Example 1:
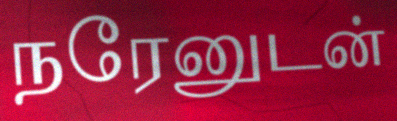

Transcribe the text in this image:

நரேனுடன்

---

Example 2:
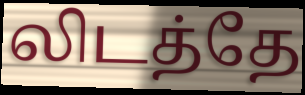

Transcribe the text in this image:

லிடத்தே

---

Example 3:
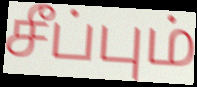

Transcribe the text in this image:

சீப்பும்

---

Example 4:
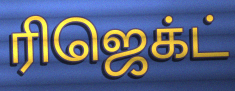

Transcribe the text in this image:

ரிஜெக்ட்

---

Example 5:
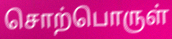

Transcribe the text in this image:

சொற்பொருள்